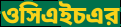
ওসিএইচএর